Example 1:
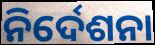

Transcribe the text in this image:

ନିର୍ଦେଶନା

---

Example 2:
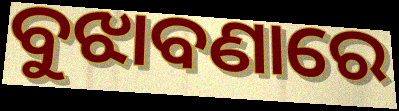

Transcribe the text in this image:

ବୁଝାବଣାରେ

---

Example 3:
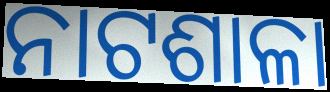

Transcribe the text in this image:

ନାଟଶାଳା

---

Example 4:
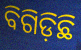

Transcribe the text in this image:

ବିଗିଡ଼ିଛି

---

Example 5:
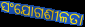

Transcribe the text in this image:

ସଂଯୋଗଶୀଳତା